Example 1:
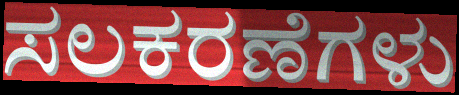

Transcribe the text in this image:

ಸಲಕರಣೆಗಳು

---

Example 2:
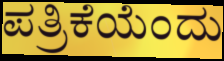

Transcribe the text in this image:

ಪತ್ರಿಕೆಯೆಂದು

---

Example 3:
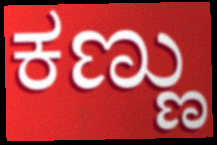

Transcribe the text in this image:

ಕಣ್ಣು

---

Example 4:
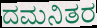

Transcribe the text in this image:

ದಮನಿತರ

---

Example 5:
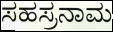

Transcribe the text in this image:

ಸಹಸ್ರನಾಮ